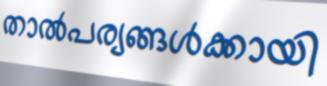
താൽപര്യങ്ങൾക്കായി